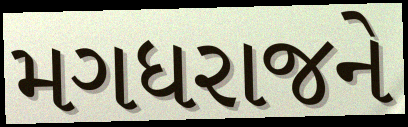
મગધરાજને